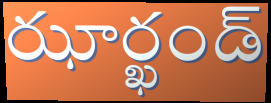
ఝార్ఖండ్